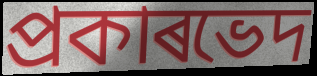
প্ৰকাৰভেদ